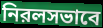
নিরলসভাবে